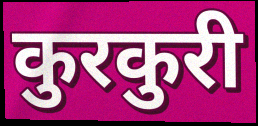
कुरकुरी